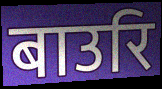
बाउरि